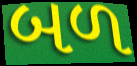
બળ